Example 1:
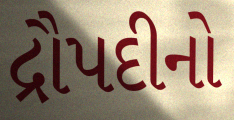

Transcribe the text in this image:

દ્રૌપદીનો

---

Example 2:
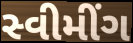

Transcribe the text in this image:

સ્વીમીંગ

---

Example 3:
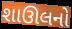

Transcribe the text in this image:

શાઊલનો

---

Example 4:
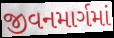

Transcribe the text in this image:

જીવનમાર્ગમાં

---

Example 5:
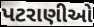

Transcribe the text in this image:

પટરાણીઓ